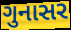
ગુનાસર